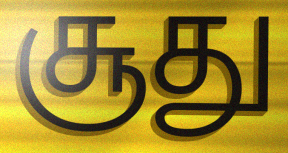
சூது